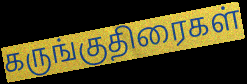
கருங்குதிரைகள்